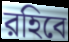
রহিবে